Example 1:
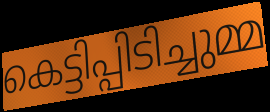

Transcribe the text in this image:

കെട്ടിപ്പിടിച്ചുമ്മ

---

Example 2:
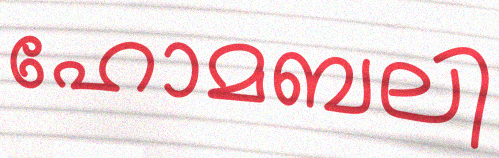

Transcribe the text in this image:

ഹോമബലി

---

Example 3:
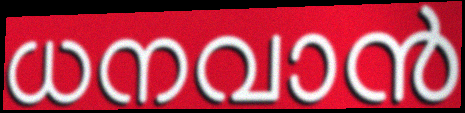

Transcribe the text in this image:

ധനവാൻ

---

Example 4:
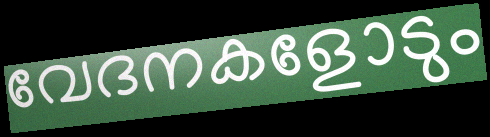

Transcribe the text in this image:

വേദനകളോടും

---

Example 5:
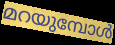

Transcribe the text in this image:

മറയുമ്പോൾ